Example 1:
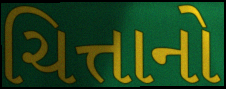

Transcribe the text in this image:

ચિત્તાનો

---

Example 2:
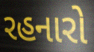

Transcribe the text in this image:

રહનારો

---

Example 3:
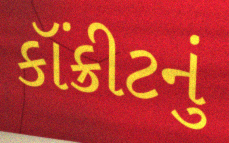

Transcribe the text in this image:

કૉંક્રીટનું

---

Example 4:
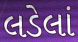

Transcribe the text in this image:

લડેલાં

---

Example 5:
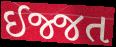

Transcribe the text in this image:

ઈજ્જત